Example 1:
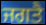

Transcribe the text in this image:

ਜਗਤੈ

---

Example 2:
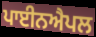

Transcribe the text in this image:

ਪਾਈਨਐਪਲ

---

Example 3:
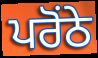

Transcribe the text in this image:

ਪਰੋਂਠੇ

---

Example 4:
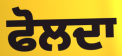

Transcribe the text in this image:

ਫੋਲਦਾ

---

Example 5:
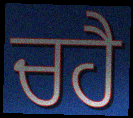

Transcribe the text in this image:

ਚਹੈ